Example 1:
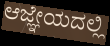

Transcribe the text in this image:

ಆಜ್ಞೇಯದಲ್ಲಿ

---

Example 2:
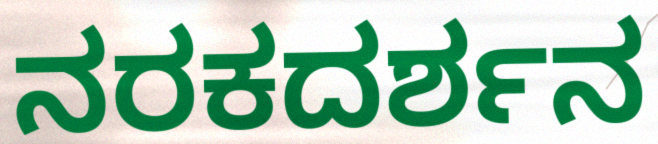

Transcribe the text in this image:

ನರಕದರ್ಶನ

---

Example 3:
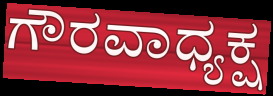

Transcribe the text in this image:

ಗೌರವಾಧ್ಯಕ್ಷ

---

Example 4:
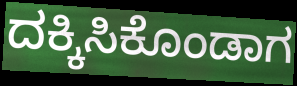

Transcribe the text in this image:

ದಕ್ಕಿಸಿಕೊಂಡಾಗ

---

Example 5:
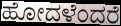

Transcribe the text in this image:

ಹೋದಳೆಂದರೆ